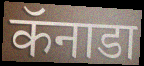
कॅनाडा